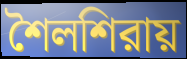
শৈলশিরায়